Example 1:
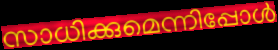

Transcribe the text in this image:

സാധിക്കുമെന്നിപ്പോൾ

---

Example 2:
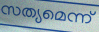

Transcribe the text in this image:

സത്യമെന്ന്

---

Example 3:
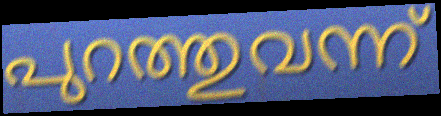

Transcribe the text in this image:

പുറത്തുവന്ന്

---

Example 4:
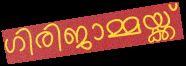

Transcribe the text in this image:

ഗിരിജാമ്മയ്ക്ക്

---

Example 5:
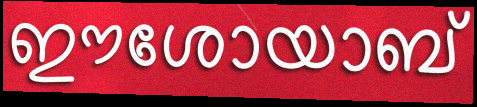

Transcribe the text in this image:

ഈശോയാബ്